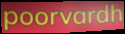
poorvardh